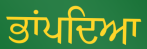
ਭਾਂਪਦਿਆ